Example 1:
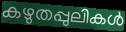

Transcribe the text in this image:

കഴുതപ്പുലികൾ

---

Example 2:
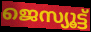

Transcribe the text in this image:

ജെസ്യൂട്ട്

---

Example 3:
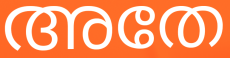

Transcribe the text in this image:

അതേ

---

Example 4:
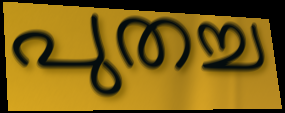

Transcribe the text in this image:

പുതച്ച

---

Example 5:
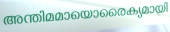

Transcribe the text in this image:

അന്തിമമായൊരൈക്യമായി